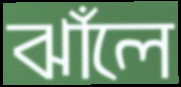
ঝাঁলে